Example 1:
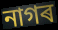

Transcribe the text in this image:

নাগৰ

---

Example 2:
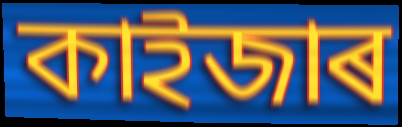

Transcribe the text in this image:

কাইজাৰ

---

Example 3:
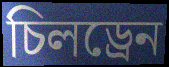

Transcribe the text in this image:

চিলড্ৰেন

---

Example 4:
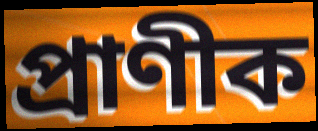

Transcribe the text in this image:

প্ৰাণীক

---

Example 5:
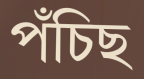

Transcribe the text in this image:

পঁচিছ